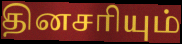
தினசரியும்